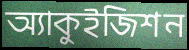
অ্যাকুইজিশন